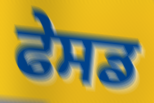
ਫੇਸਡ